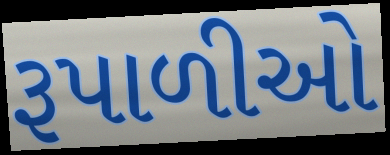
રૂપાળીઓ